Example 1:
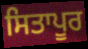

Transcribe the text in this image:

ਸਿਤਾਪੂਰ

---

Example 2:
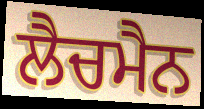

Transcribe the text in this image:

ਲੈਚਮੈਨ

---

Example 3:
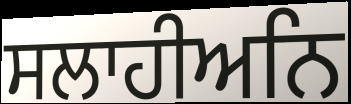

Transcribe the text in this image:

ਸਲਾਹੀਅਨਿ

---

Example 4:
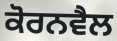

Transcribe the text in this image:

ਕੋਰਨਵੈਲ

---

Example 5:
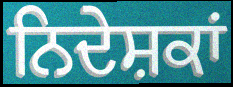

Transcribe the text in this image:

ਨਿਦੇਸ਼ਕਾਂ